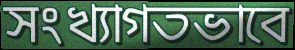
সংখ্যাগতভাবে